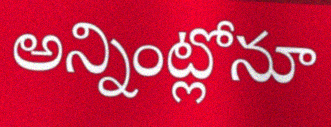
అన్నింట్లోనూ